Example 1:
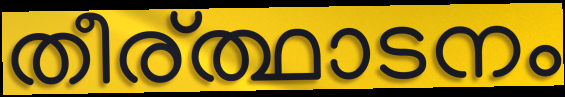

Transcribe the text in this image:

തീര്ത്ഥാടനം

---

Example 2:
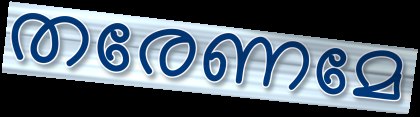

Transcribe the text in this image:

തരേണമേ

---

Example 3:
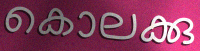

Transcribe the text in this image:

കൊലക്കു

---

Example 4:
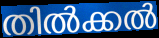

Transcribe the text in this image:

തിൽക്കൽ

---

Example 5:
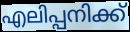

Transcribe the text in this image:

എലിപ്പനിക്ക്